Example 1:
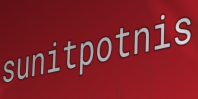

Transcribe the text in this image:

sunitpotnis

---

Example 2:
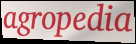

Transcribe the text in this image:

agropedia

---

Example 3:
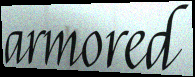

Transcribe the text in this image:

armored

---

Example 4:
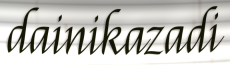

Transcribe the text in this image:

dainikazadi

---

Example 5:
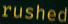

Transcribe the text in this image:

rushed